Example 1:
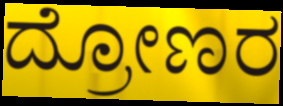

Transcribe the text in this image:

ದ್ರೋಣರ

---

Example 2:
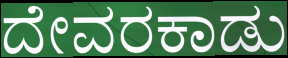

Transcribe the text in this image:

ದೇವರಕಾಡು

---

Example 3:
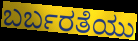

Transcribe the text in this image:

ಬರ್ಬರತೆಯು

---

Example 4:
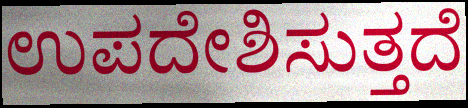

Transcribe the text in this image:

ಉಪದೇಶಿಸುತ್ತದೆ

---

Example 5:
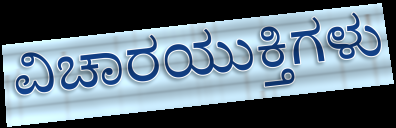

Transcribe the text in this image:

ವಿಚಾರಯುಕ್ತಿಗಳು